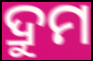
ଦ୍ରୁମ